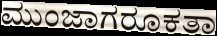
ಮುಂಜಾಗರೂಕತಾ